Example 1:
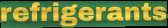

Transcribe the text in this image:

refrigerants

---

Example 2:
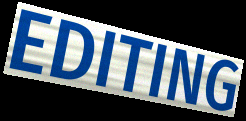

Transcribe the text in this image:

EDITING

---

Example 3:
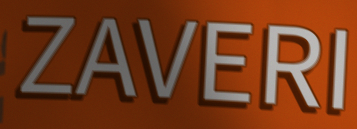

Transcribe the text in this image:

ZAVERI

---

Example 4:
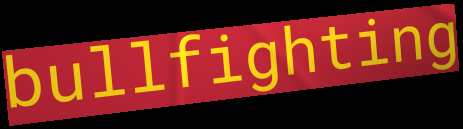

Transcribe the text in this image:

bullfighting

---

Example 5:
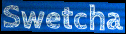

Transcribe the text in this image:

Swetcha